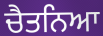
ਚੈਤਨਿਆ